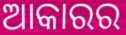
ଆକାରର